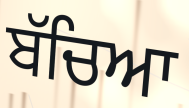
ਬੱਚਿਆ